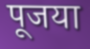
पूजया